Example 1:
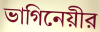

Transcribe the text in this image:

ভাগিনেয়ীর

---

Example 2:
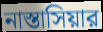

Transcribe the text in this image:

নাস্তাসিয়ার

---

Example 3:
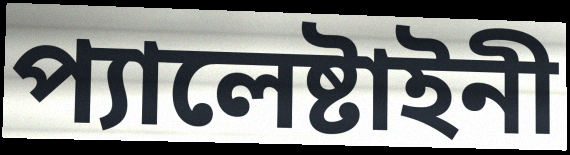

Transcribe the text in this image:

প্যালেষ্টাইনী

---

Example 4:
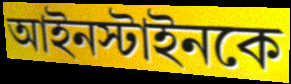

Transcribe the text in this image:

আইনস্টাইনকে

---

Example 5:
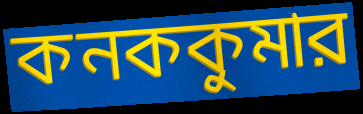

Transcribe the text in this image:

কনককুমার